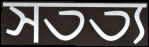
সতত্য